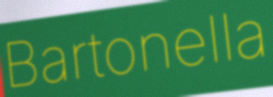
Bartonella